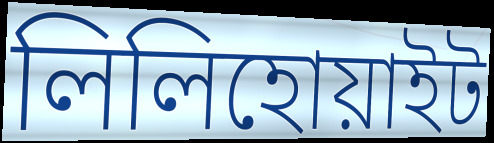
লিলিহোয়াইট